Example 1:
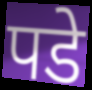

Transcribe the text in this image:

पडे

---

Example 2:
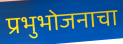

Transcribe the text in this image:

प्रभुभोजनाचा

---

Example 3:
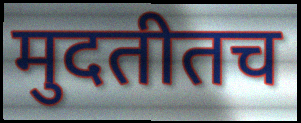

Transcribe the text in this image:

मुदतीतच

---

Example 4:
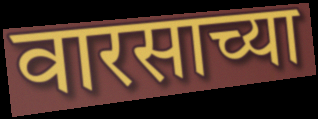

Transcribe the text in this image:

वारसाच्या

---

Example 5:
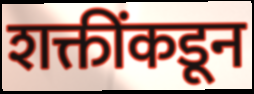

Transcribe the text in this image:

शक्तींकडून